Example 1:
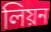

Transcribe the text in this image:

লিয়ন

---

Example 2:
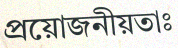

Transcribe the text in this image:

প্ৰয়োজনীয়তাঃ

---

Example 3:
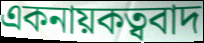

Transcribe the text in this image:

একনায়কত্ববাদ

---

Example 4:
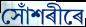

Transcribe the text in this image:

সোঁশৰীৰে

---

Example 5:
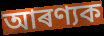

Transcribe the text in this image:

আৰণ্যক